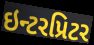
ઇન્ટરપ્રિટર